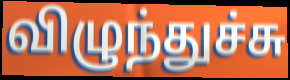
விழுந்துச்சு